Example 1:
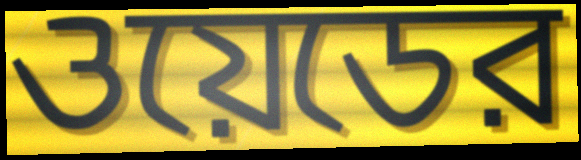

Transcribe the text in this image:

ওয়েডের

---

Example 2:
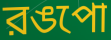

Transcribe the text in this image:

রঙপো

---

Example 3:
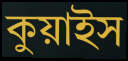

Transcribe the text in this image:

কুয়াইস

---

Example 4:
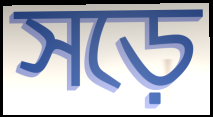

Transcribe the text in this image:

সড়ে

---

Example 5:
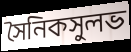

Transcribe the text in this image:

সৈনিকসুলভ